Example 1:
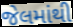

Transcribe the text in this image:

જેલમાંથી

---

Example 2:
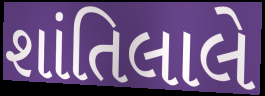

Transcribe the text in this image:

શાંતિલાલે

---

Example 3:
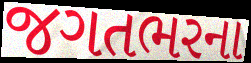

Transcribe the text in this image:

જગતભરના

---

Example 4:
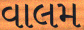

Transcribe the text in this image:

વાલમ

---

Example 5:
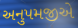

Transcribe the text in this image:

અનુપમજીએ